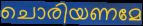
ചൊരിയണമേ